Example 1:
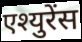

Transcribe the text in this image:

एश्युरेंस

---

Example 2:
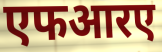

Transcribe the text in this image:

एफआरए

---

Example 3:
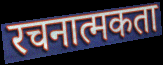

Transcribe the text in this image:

रचनात्मकता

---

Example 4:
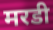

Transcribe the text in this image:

मरडी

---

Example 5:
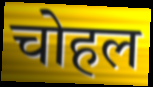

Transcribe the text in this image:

चोहल